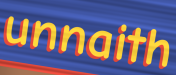
unnaith